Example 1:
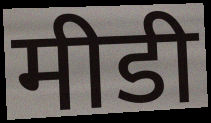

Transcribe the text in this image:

मीडी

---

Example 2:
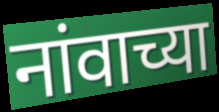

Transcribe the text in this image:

नांवाच्या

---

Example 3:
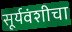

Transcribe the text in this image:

सूर्यवंशीचा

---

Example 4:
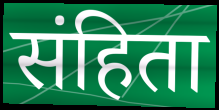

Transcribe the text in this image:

संहिता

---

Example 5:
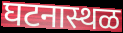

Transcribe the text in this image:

घटनास्थळ